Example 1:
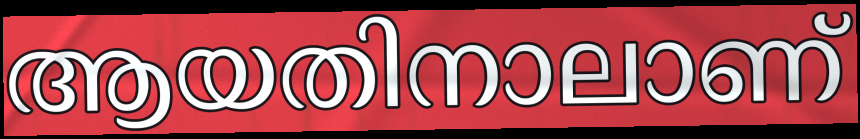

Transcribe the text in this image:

ആയതിനാലാണ്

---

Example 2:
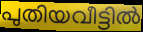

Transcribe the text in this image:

പുതിയവീട്ടിൽ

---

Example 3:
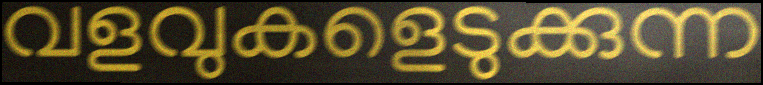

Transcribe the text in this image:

വളവുകളെടുക്കുന്ന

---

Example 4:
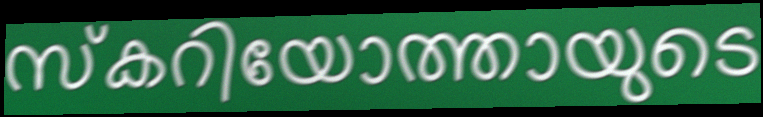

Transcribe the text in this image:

സ്കറിയോത്തായുടെ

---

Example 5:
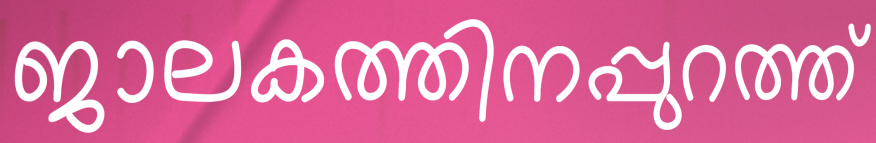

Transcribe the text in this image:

ജാലകത്തിനപ്പുറത്ത്